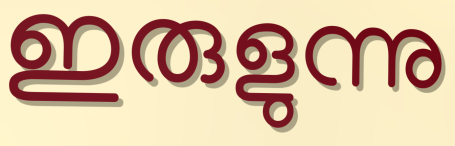
ഇരുളുന്നു